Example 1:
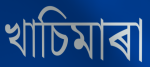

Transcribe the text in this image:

খাচিমাৰা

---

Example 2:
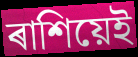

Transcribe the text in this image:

ৰাশিয়েই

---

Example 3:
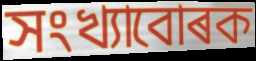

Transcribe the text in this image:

সংখ্যাবোৰক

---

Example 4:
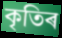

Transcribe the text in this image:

কৃতিৰ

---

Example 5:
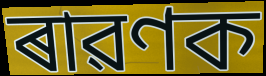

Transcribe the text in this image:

ৰাৱণক